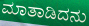
ಮಾತಾಡಿದನು